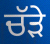
ਚੱੜੇ